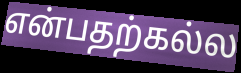
என்பதற்கல்ல